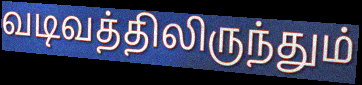
வடிவத்திலிருந்தும்